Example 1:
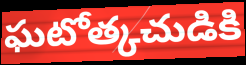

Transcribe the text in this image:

ఘటోత్కచుడికి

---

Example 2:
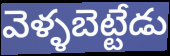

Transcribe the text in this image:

వెళ్ళబెట్టేడు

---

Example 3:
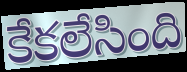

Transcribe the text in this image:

కేకలేసింది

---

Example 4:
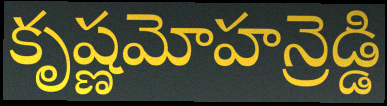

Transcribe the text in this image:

కృష్ణమోహన్రెడ్డి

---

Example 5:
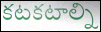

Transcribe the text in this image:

కటకటాల్ని